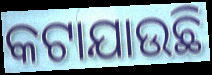
କଟାଯାଉଛି